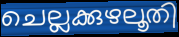
ചെല്ലക്കുഴലൂതി